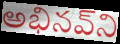
అభినవ్‌ని